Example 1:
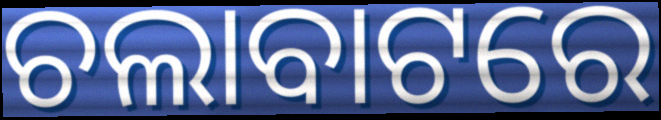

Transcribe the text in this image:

ଚଲାବାଟରେ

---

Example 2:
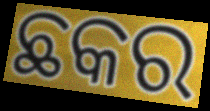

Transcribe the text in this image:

ଛକର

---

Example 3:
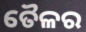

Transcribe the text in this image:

ତୈଳର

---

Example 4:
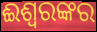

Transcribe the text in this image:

ଈଶ୍ୱରଙ୍କର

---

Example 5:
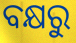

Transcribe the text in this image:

ବକ୍ଷରୁ